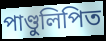
পাণ্ডুলিপিত